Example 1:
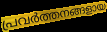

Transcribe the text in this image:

പ്രവർത്തനങ്ങളായ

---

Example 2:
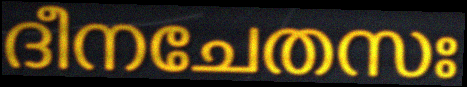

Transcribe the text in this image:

ദീനചേതസഃ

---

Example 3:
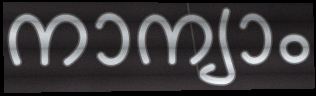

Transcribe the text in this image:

നാന്യാം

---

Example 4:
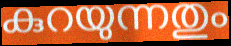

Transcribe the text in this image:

കുറയുന്നതും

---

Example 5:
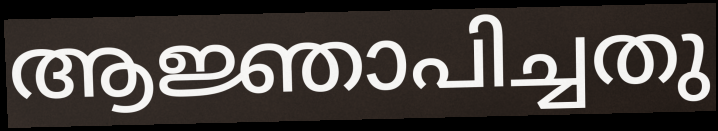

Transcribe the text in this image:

ആജ്ഞാപിച്ചതു